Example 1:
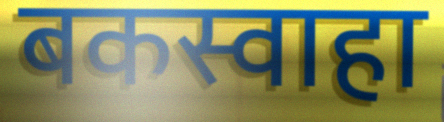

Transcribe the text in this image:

बकस्वाहा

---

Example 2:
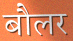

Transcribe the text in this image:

बौलर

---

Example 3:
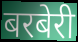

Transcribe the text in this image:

बरबेरी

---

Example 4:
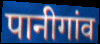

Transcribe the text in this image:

पानीगांव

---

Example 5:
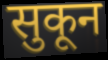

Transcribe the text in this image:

सुकून